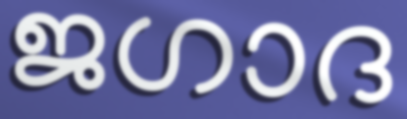
ജഗാദ